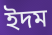
ইদম